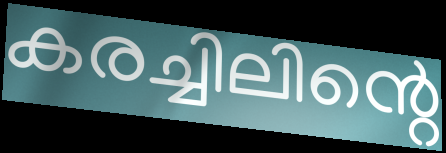
കരച്ചിലിന്റെ